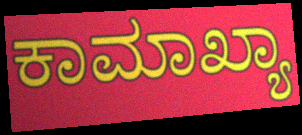
ಕಾಮಾಖ್ಯಾ